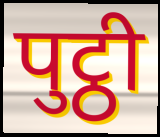
पुट्ठी